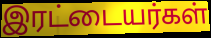
இரட்டையர்கள்